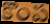
కొంప